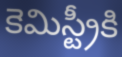
కెమిస్ట్రీకి